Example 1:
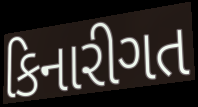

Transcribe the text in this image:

કિનારીગત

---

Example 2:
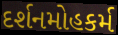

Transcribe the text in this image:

દર્શનમોહકર્મ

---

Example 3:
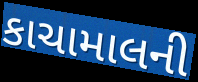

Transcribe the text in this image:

કાચામાલની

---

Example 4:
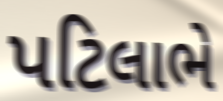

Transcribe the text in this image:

પટિલાભે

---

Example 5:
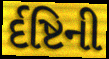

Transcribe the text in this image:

ર્દષ્ટિની